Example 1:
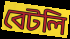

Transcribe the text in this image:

বেটলি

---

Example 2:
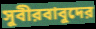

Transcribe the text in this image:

সুবীরবাবুদের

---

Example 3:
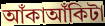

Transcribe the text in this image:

আঁকাআঁকিটা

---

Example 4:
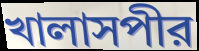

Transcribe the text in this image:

খালাসপীর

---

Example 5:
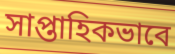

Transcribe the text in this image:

সাপ্তাহিকভাবে